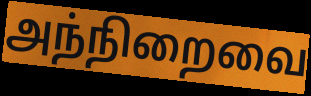
அந்நிறைவை